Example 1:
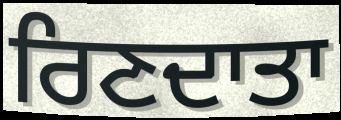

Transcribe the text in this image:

ਰਿਣਦਾਤਾ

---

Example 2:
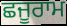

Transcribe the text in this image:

ਛਜੂਰਾਮ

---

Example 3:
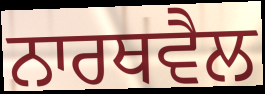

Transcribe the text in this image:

ਨਾਰਥਵੈਲ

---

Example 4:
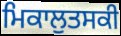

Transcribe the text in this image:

ਮਿਕਾਲੁਤਸਕੀ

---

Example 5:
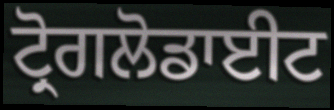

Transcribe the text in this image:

ਟ੍ਰੋਗਲੋਡਾਈਟ